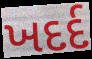
ખદર્દ